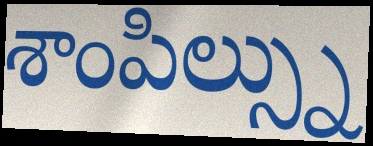
శాంపిల్స్ను